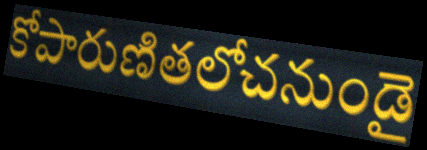
కోపారుణితలోచనుండై